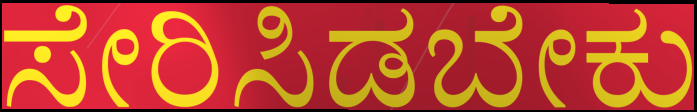
ಸೇರಿಸಿಡಬೇಕು